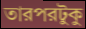
তারপরটুকু